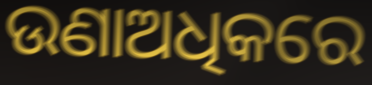
ଉଣାଅଧିକରେ